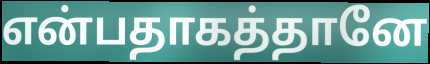
என்பதாகத்தானே